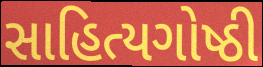
સાહિત્યગોષ્ઠી